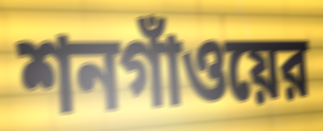
শনগাঁওয়ের